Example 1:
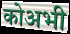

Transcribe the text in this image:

कोअभी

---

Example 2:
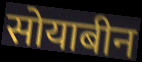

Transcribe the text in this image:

सोयाबीन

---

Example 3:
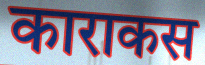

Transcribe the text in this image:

काराकस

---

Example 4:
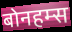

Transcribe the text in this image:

बोनहम्स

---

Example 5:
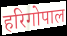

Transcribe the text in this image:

हरिगोपाल